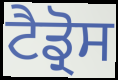
ਟੈਡ੍ਰੋਸ